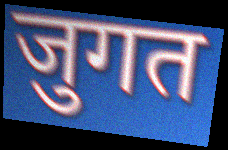
जुगत